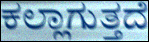
ಕಲ್ಲಾಗುತ್ತದೆ